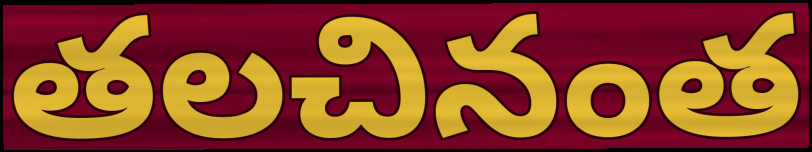
తలచినంత